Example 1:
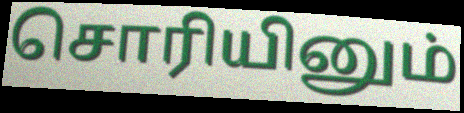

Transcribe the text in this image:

சொரியினும்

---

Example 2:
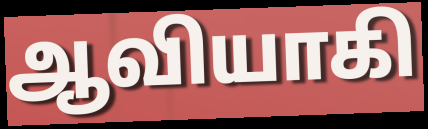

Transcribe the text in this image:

ஆவியாகி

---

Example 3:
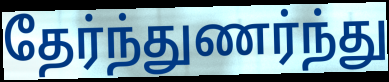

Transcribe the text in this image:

தேர்ந்துணர்ந்து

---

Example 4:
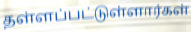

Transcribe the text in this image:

தள்ளப்பட்டுள்ளார்கள்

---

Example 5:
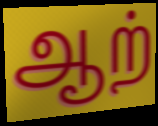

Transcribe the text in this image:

ஆற்